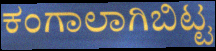
ಕಂಗಾಲಾಗಿಬಿಟ್ಟ